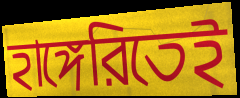
হাঙ্গেরিতেই